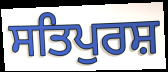
ਸਤਿਪੁਰਸ਼